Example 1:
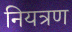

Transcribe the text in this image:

नियत्रण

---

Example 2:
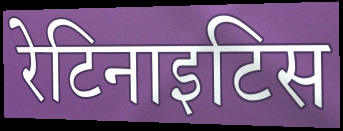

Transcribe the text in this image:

रेटिनाइटिस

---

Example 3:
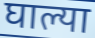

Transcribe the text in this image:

घाल्या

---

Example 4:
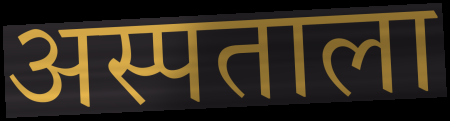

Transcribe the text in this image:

अस्पताला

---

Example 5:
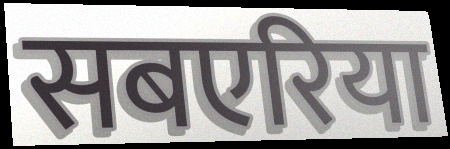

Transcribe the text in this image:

सबएरिया